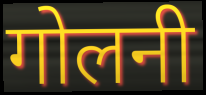
गोलनी